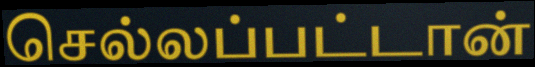
செல்லப்பட்டான்